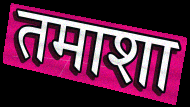
तमाशा